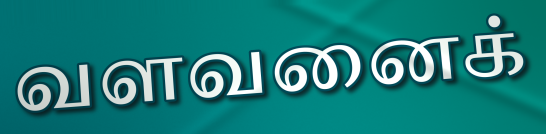
வளவனைக்